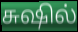
சுஷில்